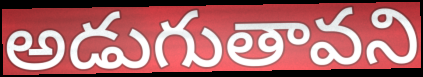
అడుగుతావని